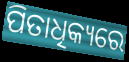
ପିତାଧିକ୍ୟରେ